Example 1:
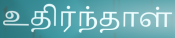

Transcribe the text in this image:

உதிர்ந்தாள்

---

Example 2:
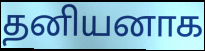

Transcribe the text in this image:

தனியனாக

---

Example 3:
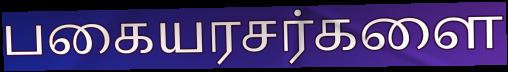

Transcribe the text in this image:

பகையரசர்களை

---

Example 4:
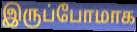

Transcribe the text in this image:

இருப்போமாக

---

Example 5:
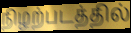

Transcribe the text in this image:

நிழற்படத்தில்